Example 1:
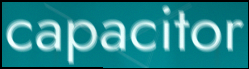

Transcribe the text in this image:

capacitor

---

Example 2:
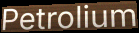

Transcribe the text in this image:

Petrolium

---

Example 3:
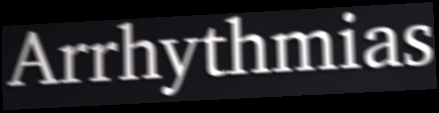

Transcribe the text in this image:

Arrhythmias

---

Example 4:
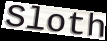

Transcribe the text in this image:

Sloth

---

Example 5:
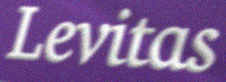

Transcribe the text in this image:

Levitas